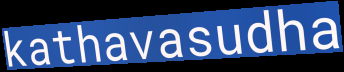
kathavasudha